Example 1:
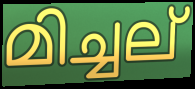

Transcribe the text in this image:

മിച്ചല്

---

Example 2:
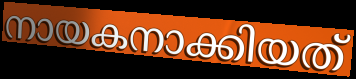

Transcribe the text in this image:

നായകനാക്കിയത്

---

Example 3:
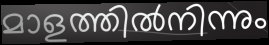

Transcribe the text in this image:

മാളത്തിൽനിന്നും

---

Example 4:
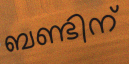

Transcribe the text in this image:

ബണ്ടിന്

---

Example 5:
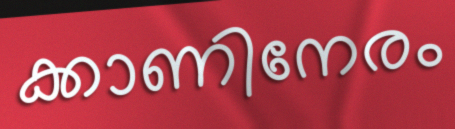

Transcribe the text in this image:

ക്കാണിനേരം